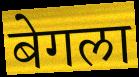
बेगला